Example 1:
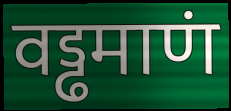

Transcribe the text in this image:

वड्ढमाणं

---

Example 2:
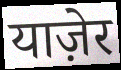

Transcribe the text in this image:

याज़ेर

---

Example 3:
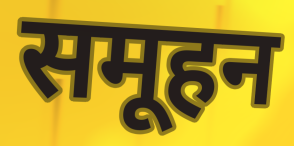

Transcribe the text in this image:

समूहन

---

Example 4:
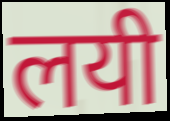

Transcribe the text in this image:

लयी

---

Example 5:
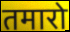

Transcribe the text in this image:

तमारो